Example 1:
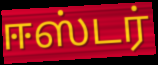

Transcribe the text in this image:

ஈஸ்டர்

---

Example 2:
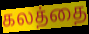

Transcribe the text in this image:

கலத்தை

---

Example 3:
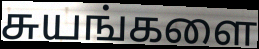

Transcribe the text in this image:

சுயங்களை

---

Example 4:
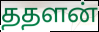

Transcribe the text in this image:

ததளன்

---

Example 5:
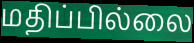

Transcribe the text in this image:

மதிப்பில்லை